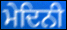
ਮੇਦਿਨੀ